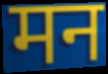
मन